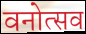
वनोत्सव